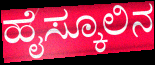
ಹೈಸ್ಕೂಲಿನ